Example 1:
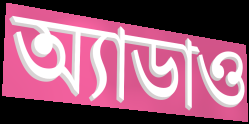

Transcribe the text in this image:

অ্যাডাও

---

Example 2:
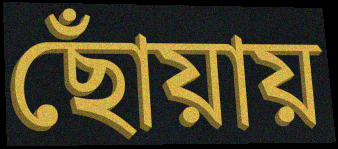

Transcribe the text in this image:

ছোঁয়ায়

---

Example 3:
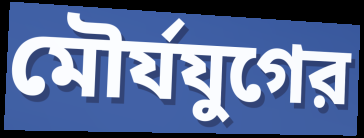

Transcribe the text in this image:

মৌর্যযুগের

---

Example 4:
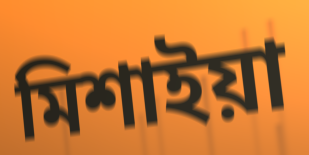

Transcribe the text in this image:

মিশাইয়া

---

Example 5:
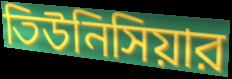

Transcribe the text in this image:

তিউনিসিয়ার